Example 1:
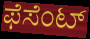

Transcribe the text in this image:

ಫೆಸೆಂಟ್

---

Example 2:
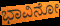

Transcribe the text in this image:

ಭಾವಿನೋ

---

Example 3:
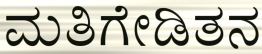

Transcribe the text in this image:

ಮತಿಗೇಡಿತನ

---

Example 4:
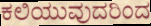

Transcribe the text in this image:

ಕಲಿಯುವುದರಿಂದ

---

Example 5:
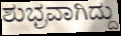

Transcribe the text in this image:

ಶುಭ್ರವಾಗಿದ್ದು